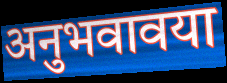
अनुभवावया